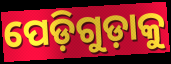
ପେଡ଼ିଗୁଡ଼ାକୁ